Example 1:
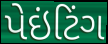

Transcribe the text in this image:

પેઇંટિંગ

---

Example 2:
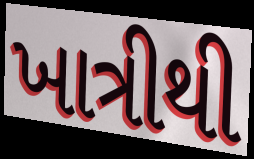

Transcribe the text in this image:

ખાત્રીથી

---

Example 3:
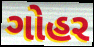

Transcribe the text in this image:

ગોહર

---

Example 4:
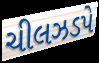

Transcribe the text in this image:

ચીલઝડપે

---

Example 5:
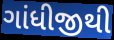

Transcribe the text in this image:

ગાંધીજીથી